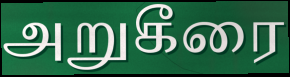
அறுகீரை